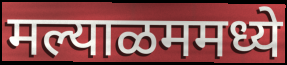
मल्याळममध्ये